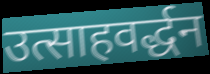
उत्साहवर्द्धन